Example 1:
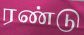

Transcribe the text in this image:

ரண்டு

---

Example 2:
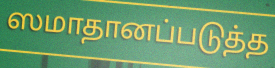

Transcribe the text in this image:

ஸமாதானப்படுத்த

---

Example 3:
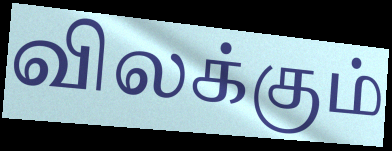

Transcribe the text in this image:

விலக்கும்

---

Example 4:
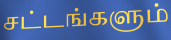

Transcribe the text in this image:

சட்டங்களும்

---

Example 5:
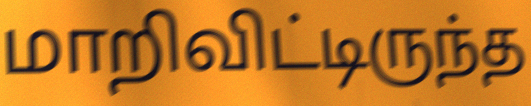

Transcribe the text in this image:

மாறிவிட்டிருந்த